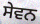
ਸੇਵਨ